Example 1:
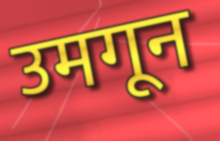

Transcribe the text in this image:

उमगून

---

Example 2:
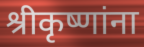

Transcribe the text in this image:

श्रीकृष्णांना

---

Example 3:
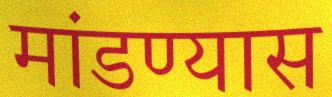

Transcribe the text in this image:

मांडण्यास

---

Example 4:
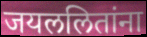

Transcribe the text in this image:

जयललितांना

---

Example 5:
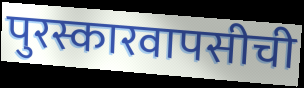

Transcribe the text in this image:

पुरस्कारवापसीची